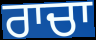
ਰਾਚਾ